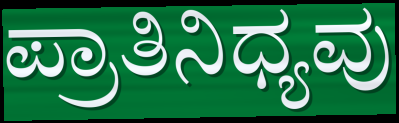
ಪ್ರಾತಿನಿಧ್ಯವು